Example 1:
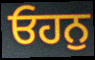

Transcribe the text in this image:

ਓਹਨੁ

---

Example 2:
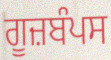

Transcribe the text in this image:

ਗੂਜ਼ਬੰਪਸ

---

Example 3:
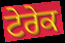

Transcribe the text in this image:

ਟੇਰੇਕ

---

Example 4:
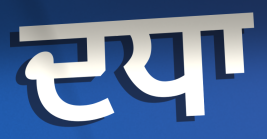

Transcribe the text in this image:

ਦਧਾ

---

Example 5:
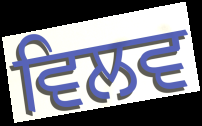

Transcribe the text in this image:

ਵਿਲਵ